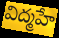
విద్మహే